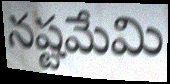
నష్టమేమి